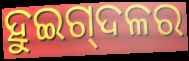
ହୁଇଗ୍‌ଦଳର